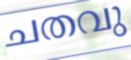
ചതവു